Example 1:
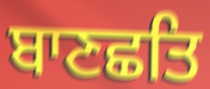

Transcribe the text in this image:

ਬਾਣਛਤਿ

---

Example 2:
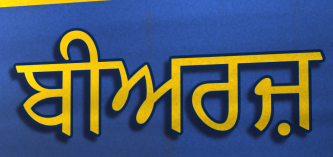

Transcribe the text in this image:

ਬੀਅਰਜ਼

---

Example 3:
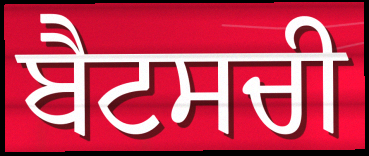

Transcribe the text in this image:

ਬੈਟਸਚੀ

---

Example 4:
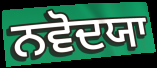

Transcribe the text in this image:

ਨਵੋਦਯਾ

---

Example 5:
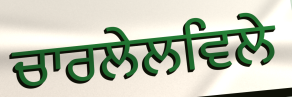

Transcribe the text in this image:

ਚਾਰਲੇਲਵਿਲੇ